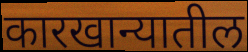
कारखान्यातील